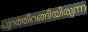
പുറത്തിറങ്ങിയിരുന്ന